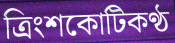
ত্রিংশকোটিকণ্ঠ